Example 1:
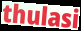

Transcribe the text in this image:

thulasi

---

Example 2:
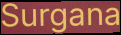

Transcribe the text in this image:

Surgana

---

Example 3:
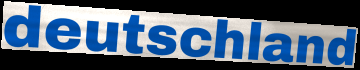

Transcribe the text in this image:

deutschland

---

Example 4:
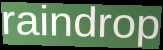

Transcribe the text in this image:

raindrop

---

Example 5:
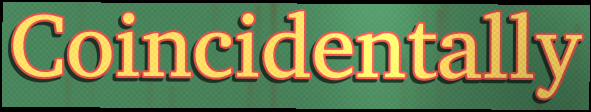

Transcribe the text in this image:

Coincidentally